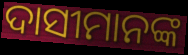
ଦାସୀମାନଙ୍କ